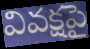
వివక్షపై